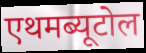
एथमब्यूटोल